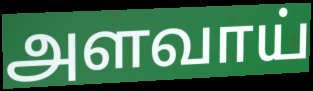
அளவாய்